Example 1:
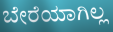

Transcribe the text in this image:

ಬೇರೆಯಾಗಿಲ್ಲ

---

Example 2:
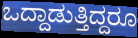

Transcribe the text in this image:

ಒದ್ದಾಡುತ್ತಿದ್ದರೂ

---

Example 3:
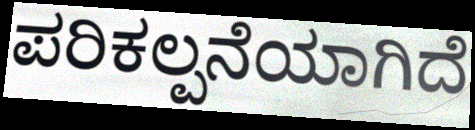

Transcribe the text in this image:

ಪರಿಕಲ್ಪನೆಯಾಗಿದೆ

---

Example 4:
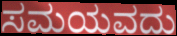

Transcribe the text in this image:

ಸಮಯವದು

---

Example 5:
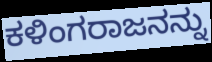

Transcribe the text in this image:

ಕಳಿಂಗರಾಜನನ್ನು